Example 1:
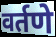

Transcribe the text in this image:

वर्तणे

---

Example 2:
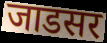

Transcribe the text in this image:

जाडसर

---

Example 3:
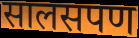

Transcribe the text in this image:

सालसपण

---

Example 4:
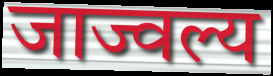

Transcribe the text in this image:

जाज्वल्य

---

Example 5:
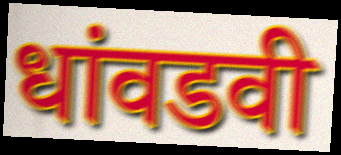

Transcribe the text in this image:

धांवडवी